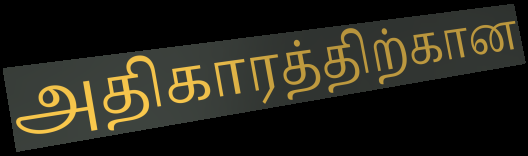
அதிகாரத்திற்கான